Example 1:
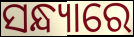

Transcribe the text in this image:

ସନ୍ଧ୍ୟାରେ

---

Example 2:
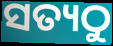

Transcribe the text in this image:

ସତ୍ୟଠୁ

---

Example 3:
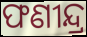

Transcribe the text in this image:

ଫଣୀନ୍ଦ୍ର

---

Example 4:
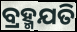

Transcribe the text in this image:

ବ୍ରହ୍ମଯତି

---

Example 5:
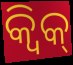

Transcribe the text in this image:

କ୍ୱିକ୍